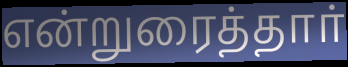
என்றுரைத்தார்